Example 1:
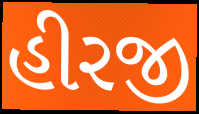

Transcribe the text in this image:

હીરજી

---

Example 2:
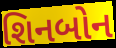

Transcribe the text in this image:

શિનબોન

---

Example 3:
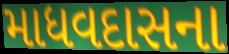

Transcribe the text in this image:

માધવદાસના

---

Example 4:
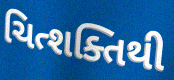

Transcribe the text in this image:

ચિત્શક્તિથી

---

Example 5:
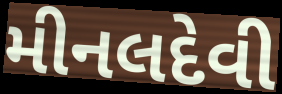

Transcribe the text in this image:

મીનલદેવી